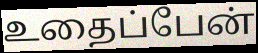
உதைப்பேன்